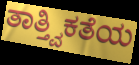
ತಾತ್ತ್ವಿಕತೆಯ